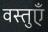
वस्‍तुएँ